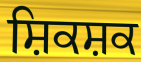
ਸ਼ਿਕਸ਼ਕ